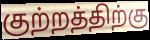
குற்றத்திற்கு